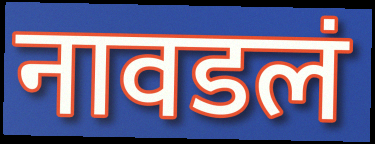
नावडलं